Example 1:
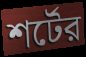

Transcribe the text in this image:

শর্টের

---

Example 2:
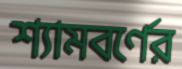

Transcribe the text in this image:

শ্যামবর্ণের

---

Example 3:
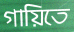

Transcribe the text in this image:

গায়িতে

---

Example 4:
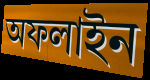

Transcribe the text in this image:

অফলাইন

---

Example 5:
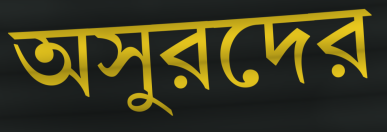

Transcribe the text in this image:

অসুরদের